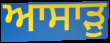
ਆਸਾੜੁ